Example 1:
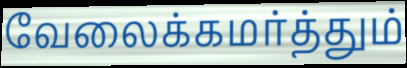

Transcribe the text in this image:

வேலைக்கமர்த்தும்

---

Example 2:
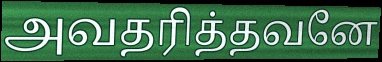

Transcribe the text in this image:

அவதரித்தவனே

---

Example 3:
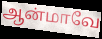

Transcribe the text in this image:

ஆன்மாவே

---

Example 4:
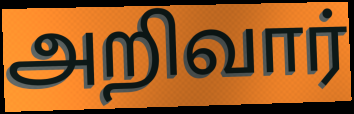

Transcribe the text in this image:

அறிவார்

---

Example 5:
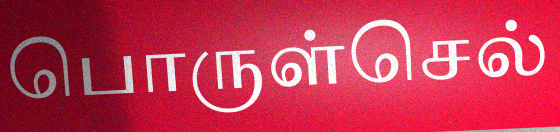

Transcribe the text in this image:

பொருள்செல்